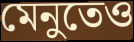
মেনুতেও